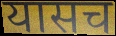
यासच